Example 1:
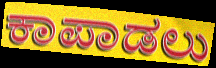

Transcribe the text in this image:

ಕಾಪಾಡಲು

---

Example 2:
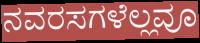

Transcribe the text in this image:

ನವರಸಗಳೆಲ್ಲವೂ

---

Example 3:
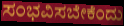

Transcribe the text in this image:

ಸಂಭವಿಸಬೇಕೆಂದು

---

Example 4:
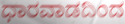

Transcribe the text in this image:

ಧಾರವಾಡದಿಂದ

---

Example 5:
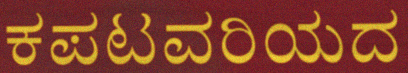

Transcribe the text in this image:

ಕಪಟವರಿಯದ